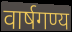
वार्षगण्य